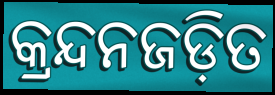
କ୍ରନ୍ଦନଜଡ଼ିତ